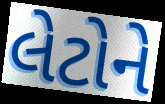
લેટોને